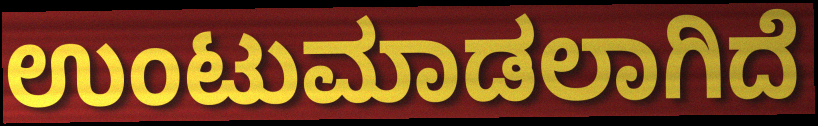
ಉಂಟುಮಾಡಲಾಗಿದೆ